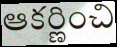
ఆకర్ణించి